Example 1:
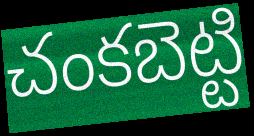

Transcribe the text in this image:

చంకబెట్టి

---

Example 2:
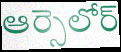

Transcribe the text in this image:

ఆర్సెలోర్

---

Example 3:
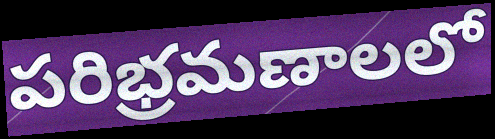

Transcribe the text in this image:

పరిభ్రమణాలలో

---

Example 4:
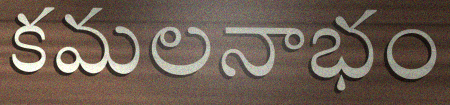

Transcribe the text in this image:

కమలనాభం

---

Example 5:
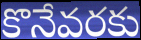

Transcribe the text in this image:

కొనేవరకు